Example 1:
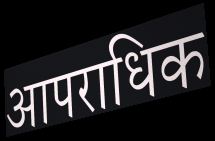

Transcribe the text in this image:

आपराधिक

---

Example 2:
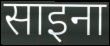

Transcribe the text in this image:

साइना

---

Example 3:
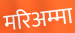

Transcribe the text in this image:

मरिअम्मा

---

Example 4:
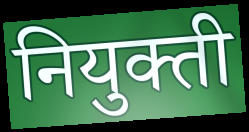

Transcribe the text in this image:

नियुक्ती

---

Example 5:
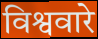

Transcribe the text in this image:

विश्ववारे